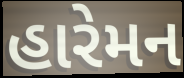
હારેમન